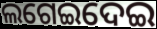
ଲଗେଇଦେଇ